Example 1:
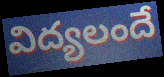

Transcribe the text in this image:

విద్యలందే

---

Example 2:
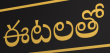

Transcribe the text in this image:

ఈటలతో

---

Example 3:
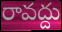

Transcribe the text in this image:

రావద్దు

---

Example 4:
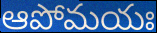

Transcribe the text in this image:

ఆపోమయః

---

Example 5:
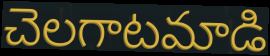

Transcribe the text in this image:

చెలగాటమాడి